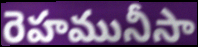
రెహమునీసా